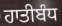
ਹਾਤੀਬੰਧ